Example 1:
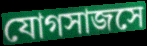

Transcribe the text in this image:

যোগসাজসে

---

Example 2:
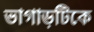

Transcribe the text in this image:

ভাগাড়টিকে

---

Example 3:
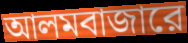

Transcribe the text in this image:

আলমবাজারে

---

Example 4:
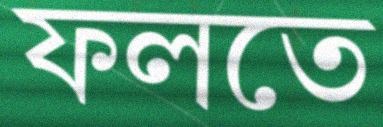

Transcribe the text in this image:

ফলতে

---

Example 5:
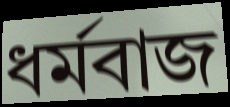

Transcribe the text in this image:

ধর্মবাজ